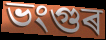
ভংগুৰ